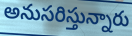
అనుసరిస్తున్నారు